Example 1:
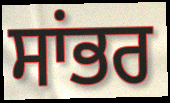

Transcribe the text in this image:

ਸਾਂਭਰ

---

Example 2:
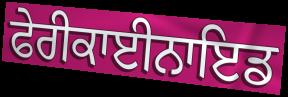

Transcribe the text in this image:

ਫੇਰੀਕਾਈਨਾਇਡ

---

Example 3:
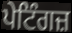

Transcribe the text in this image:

ਪੇਟਿੰਗਜ਼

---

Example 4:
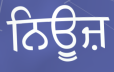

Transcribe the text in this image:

ਨਿਉੂਜ਼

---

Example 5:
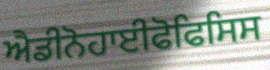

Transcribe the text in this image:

ਐਡੀਨੋਹਾਈਫੋਫਿਸਿਸ